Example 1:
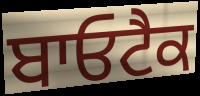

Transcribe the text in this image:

ਬਾਓਟੈਕ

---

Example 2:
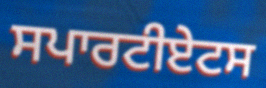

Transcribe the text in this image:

ਸਪਾਰਟੀਏਟਸ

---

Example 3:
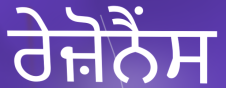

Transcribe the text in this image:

ਰੇਜ਼ੋਨੈਂਸ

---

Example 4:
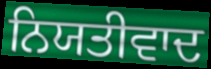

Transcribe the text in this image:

ਨਿਯਤੀਵਾਦ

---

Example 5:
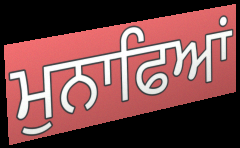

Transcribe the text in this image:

ਮੁਨਾਫਿਆਂ